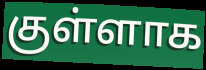
குள்ளாக